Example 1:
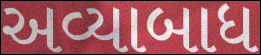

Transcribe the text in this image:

અવ્યાબાધ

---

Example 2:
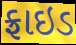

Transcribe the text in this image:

ફ્રાઇડ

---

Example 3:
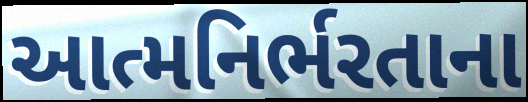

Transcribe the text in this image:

આત્મનિર્ભરતાના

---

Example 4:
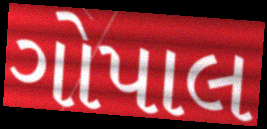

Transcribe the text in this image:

ગોપાલ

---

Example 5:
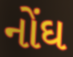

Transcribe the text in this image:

નોંઘ